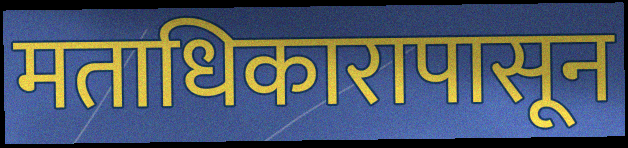
मताधिकारापासून